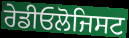
ਰੇਡੀਓਲੋਜਿਸਟ